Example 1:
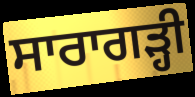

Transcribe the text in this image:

ਸਾਰਾਗੜ੍ਹੀ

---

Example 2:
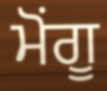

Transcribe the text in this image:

ਮੋਂਗੂ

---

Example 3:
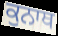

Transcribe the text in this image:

ਕੁਨਾਥ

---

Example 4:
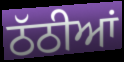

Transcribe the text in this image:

ਠੱਠੀਆਂ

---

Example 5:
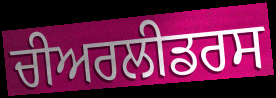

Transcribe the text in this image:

ਚੀਅਰਲੀਡਰਸ